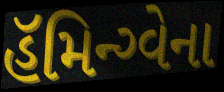
હૅમિન્ગ્વેના